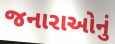
જનારાઓનું